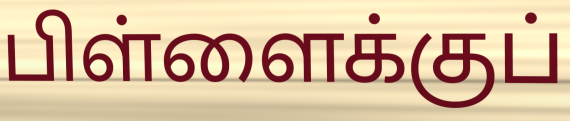
பிள்ளைக்குப்